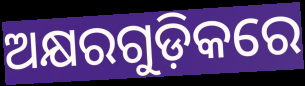
ଅକ୍ଷରଗୁଡ଼ିକରେ